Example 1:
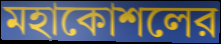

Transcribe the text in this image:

মহাকোশলের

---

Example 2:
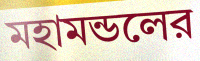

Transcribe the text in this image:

মহামন্ডলের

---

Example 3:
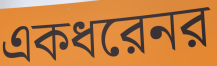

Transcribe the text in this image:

একধরেনর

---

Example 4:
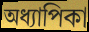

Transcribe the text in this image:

অধ্যাপিকা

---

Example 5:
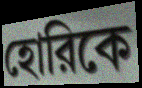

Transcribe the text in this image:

হোরিকে